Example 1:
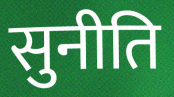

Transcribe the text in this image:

सुनीति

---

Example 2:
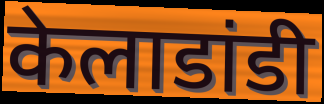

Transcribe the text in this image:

केलाडांडी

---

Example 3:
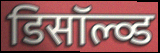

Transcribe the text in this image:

डिसॉल्व्ड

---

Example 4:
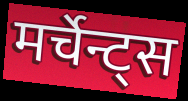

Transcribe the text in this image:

मर्चेन्ट्स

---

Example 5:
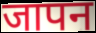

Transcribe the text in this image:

जापन